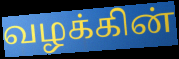
வழக்கின்